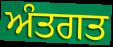
ਅੰਤਗਤ